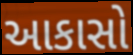
આકાસો